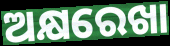
ଅକ୍ଷରେଖା